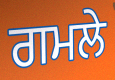
ਗਮਲੇ